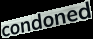
condoned